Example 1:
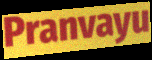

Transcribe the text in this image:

Pranvayu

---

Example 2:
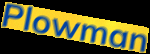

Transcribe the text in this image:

Plowman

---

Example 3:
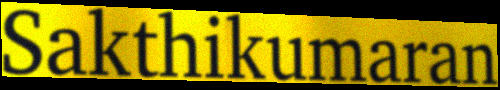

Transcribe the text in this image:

Sakthikumaran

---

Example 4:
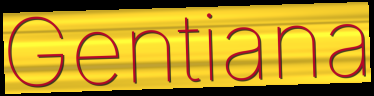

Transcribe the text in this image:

Gentiana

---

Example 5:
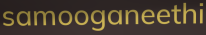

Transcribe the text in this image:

samooganeethi